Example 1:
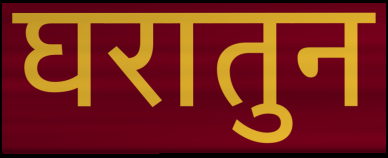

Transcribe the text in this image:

घरातुन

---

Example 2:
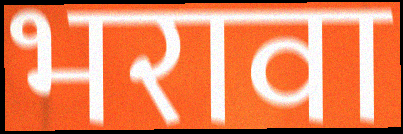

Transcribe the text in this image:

भरावा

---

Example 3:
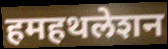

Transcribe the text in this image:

हमहथलेशन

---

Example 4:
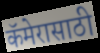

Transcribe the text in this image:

कॅमेरासाठी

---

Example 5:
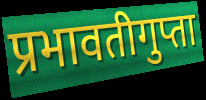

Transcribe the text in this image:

प्रभावतीगुप्ता